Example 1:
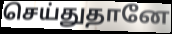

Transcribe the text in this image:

செய்துதானே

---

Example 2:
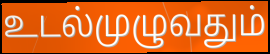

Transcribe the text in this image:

உடல்முழுவதும்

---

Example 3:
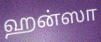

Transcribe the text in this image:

ஹன்ஸா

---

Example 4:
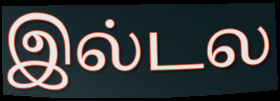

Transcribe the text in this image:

இல்டல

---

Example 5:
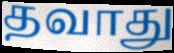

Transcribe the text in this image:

தவாது